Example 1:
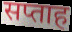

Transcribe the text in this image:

सप्ताह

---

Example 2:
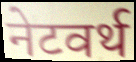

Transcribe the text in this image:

नेटवर्थ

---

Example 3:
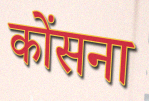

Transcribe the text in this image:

कोंसना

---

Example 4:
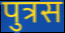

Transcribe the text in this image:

पुत्रस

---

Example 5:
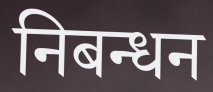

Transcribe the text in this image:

निबन्धन